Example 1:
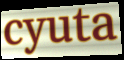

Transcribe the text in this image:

cyuta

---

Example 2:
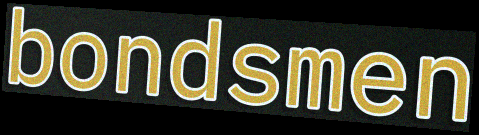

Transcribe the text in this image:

bondsmen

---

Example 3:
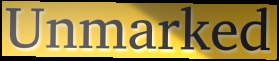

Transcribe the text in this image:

Unmarked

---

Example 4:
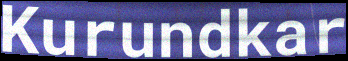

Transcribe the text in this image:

Kurundkar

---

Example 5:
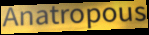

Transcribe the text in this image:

Anatropous